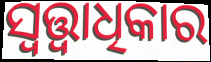
ସ୍ୱତ୍ତ୍ୱାଧିକାର